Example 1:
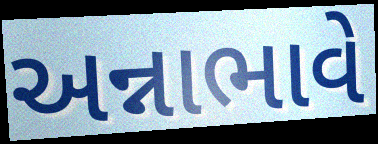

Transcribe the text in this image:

અન્નાભાવે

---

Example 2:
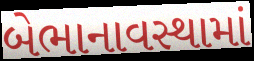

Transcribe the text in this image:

બેભાનાવસ્થામાં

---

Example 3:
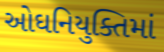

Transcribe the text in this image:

ઓઘનિયુક્તિમાં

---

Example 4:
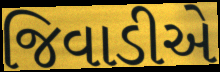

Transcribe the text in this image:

જિવાડીએ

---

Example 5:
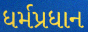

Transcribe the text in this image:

ધર્મપ્રધાન